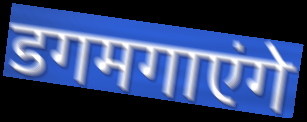
डगमगाएंगे